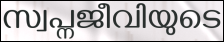
സ്വപ്നജീവിയുടെ